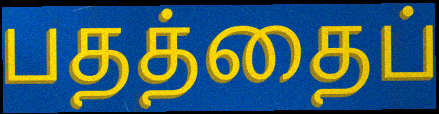
பதத்தைப்